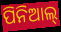
ପିନିଆଲ୍